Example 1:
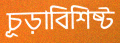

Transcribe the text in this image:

চূড়াবিশিষ্ট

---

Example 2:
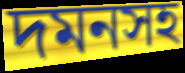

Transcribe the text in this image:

দমনসহ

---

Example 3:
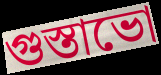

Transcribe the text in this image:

গুস্তাভো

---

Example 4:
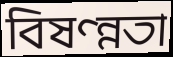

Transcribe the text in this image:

বিষণ্ন্নতা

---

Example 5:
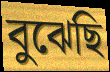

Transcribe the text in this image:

বুঝেছি